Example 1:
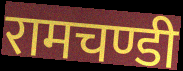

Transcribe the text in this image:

रामचण्डी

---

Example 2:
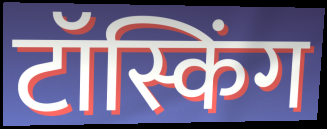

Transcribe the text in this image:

टॉस्किंग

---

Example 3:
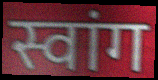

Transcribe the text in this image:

स्‍वांग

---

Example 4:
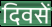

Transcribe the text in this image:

दिवसें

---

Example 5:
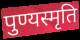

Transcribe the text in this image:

पुण्यस्मृति